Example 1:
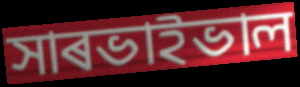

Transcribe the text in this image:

সাৰভাইভাল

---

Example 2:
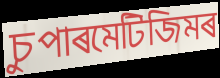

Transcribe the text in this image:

চুপাৰমেটিজিমৰ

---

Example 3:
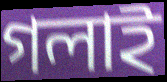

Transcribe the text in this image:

গলাই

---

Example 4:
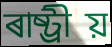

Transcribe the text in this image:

ৰাষ্ট্ৰীয়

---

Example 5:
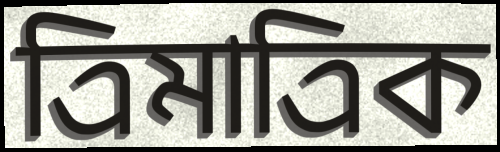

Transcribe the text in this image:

ত্ৰিমাত্ৰিক